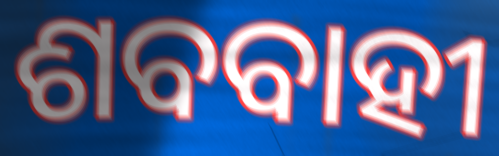
ଶବବାହୀ